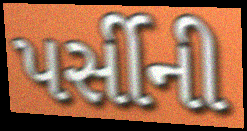
પર્સીની